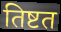
तिष्टत